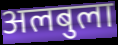
अलबुला